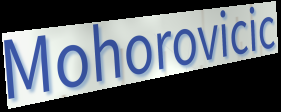
Mohorovicic